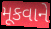
મૂકવાને